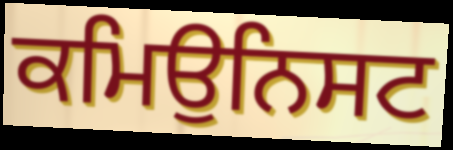
ਕਮਿਉਨਿਸਟ